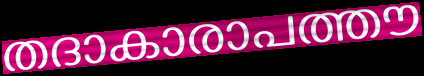
തദാകാരാപത്തൗ